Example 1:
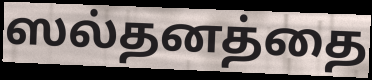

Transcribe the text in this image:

ஸல்தனத்தை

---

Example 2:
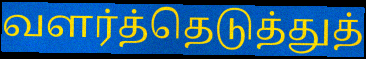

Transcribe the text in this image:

வளர்த்தெடுத்துத்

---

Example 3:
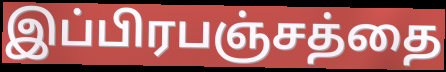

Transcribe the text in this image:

இப்பிரபஞ்சத்தை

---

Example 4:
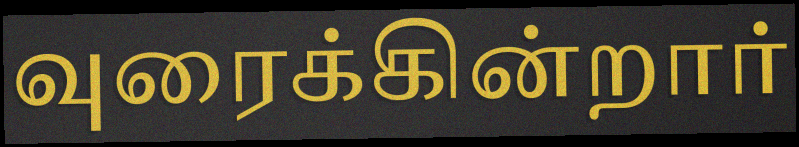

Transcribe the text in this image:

வுரைக்கின்றார்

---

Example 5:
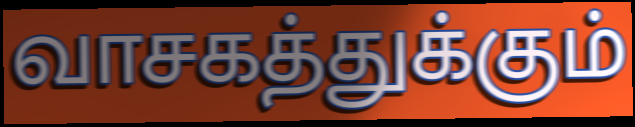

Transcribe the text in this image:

வாசகத்துக்கும்